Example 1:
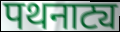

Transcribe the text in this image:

पथनाट्य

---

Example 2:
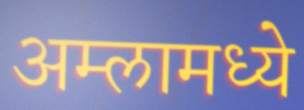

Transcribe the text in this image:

अम्लामध्ये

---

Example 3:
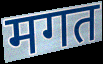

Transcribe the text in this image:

मगत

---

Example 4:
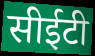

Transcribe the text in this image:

सीईटी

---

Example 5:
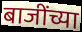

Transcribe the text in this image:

बाजींच्या